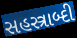
સહસ્ત્રાબ્દી